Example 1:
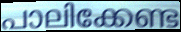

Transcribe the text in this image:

പാലിക്കേണ്ട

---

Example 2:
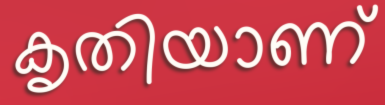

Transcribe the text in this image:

കൃതിയാണ്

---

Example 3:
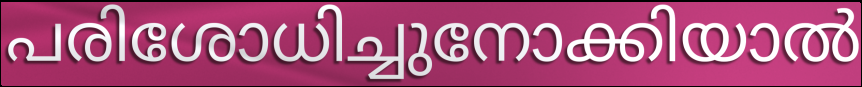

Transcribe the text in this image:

പരിശോധിച്ചുനോക്കിയാൽ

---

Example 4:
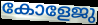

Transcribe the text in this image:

കോളേജു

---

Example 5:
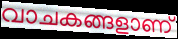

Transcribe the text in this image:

വാചകങ്ങളാണ്